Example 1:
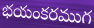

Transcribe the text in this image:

భయంకరముగ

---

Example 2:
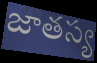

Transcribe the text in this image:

జాతస్య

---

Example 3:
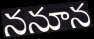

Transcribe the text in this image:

ననూన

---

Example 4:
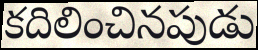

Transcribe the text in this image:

కదిలించినపుడు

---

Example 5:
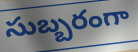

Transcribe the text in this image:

సుబ్బరంగా